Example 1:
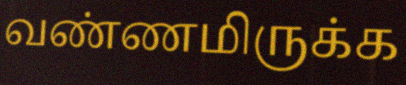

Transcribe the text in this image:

வண்ணமிருக்க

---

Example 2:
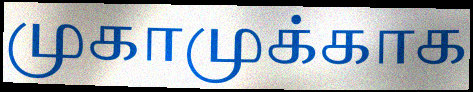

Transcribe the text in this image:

முகாமுக்காக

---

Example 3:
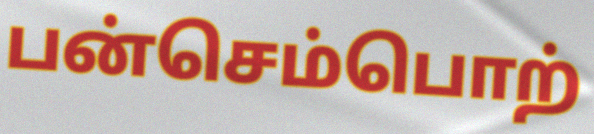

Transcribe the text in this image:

பன்செம்பொற்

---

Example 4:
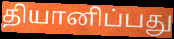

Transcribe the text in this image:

தியானிப்பது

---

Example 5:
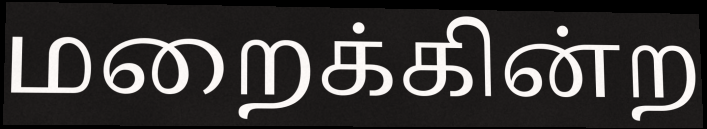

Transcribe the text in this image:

மறைக்கின்ற